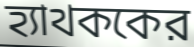
হ্যাথককের